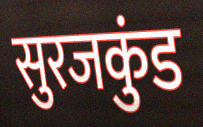
सुरजकुंड